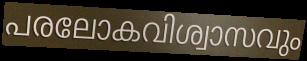
പരലോകവിശ്വാസവും